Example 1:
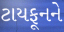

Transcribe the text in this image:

ટાયફૂનને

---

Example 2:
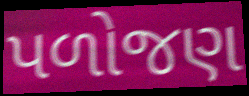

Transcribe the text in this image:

પળોજણ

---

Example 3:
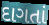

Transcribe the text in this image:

દાગતાં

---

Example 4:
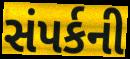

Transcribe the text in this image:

સંપર્કની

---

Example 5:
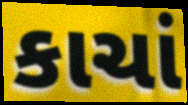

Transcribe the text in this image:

કાચાં